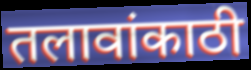
तलावांकाठी